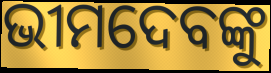
ଭୀମଦେବଙ୍କୁ